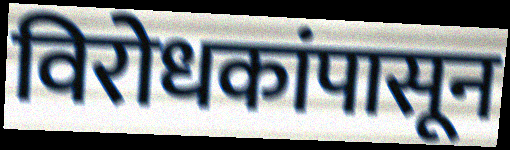
विरोधकांपासून